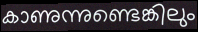
കാണുന്നുണ്ടെങ്കിലും